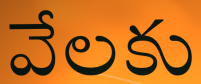
వేలకు